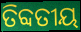
ତିବ୍ଦତୀୟ